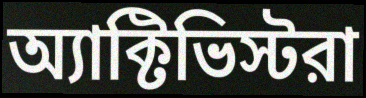
অ্যাক্টিভিস্টরা